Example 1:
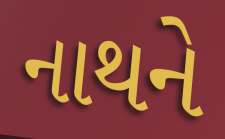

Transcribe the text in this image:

નાથને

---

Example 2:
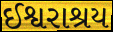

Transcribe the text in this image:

ઈશ્વરાશ્રય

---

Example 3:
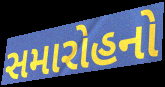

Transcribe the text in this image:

સમારોહનો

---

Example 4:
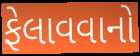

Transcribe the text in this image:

ફેલાવવાનો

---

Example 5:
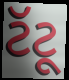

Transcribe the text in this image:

ટૅટૂ